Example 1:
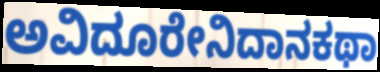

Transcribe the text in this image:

ಅವಿದೂರೇನಿದಾನಕಥಾ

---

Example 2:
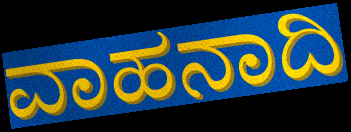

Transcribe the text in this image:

ವಾಹನಾದಿ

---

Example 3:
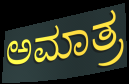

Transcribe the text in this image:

ಅಮಾತ್ರ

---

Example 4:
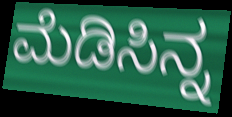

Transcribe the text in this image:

ಮೆಡಿಸಿನ್ನ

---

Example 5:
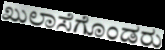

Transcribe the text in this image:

ಖುಲಾಸೆಗೊಂಡರು